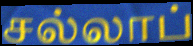
சல்லாப்